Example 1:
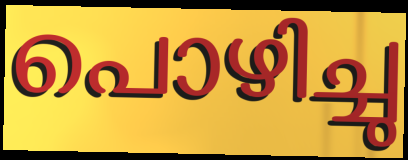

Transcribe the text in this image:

പൊഴിച്ചു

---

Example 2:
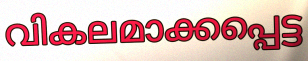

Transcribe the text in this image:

വികലമാക്കപ്പെട്ട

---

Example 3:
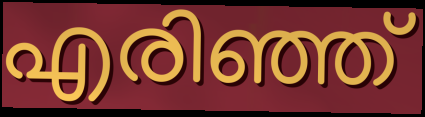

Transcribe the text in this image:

എരിഞ്ഞ്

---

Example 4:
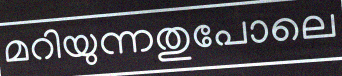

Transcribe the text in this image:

മറിയുന്നതുപോലെ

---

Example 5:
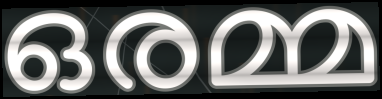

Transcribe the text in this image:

ഒരമ്മ